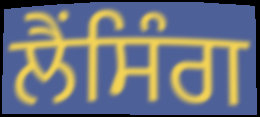
ਲੈਂਸਿੰਗ